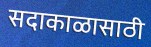
सदाकाळासाठी